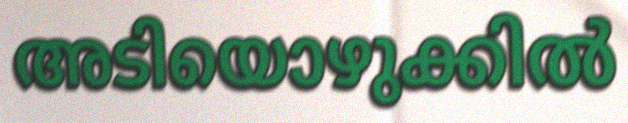
അടിയൊഴുക്കിൽ